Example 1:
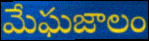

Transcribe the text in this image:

మేఘజాలం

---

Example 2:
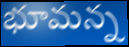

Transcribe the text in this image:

భూమన్న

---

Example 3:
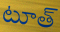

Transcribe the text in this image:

టూత్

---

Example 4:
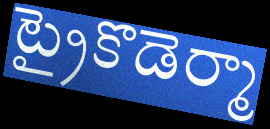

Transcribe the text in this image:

ట్రైకొడెర్మా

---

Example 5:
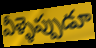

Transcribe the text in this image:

వీళ్ళెప్పుడూ